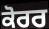
ਕੋਰਰ